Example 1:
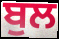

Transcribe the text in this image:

ਬੁਲ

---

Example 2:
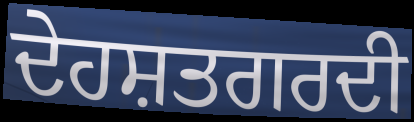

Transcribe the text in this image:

ਦੇਹਸ਼ਤਗਰਦੀ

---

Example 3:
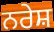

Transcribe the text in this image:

ਨਰੇਸ਼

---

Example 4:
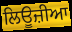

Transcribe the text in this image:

ਲਿਊਜ਼ੀਆ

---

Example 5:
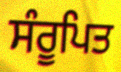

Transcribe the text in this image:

ਸੰਰੂਪਿਤ